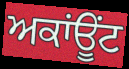
ਅਕਾਂਊਂਟ